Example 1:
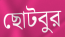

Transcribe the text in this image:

ছোটবুর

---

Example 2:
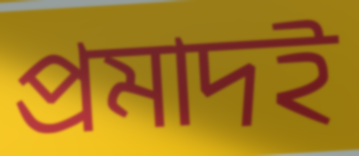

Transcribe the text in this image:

প্রমাদই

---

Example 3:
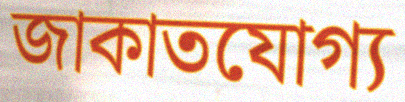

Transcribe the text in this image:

জাকাতযোগ্য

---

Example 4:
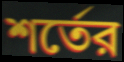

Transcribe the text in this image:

শর্তের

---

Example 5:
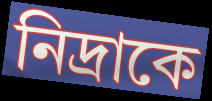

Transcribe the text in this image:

নিদ্রাকে